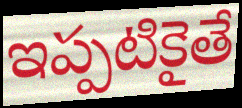
ఇప్పటికైతే